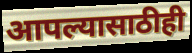
आपल्यासाठीही